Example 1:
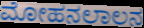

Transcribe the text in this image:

ಮೋಹನಲಾಲನ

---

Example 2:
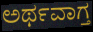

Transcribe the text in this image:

ಅರ್ಥವಾಗ್ತ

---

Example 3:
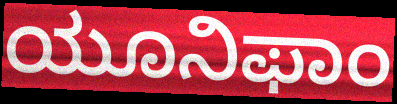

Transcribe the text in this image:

ಯೂನಿಫಾಂ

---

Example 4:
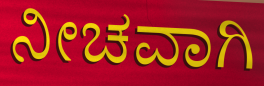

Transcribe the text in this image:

ನೀಚವಾಗಿ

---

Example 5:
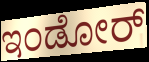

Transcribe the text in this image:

ಇಂಡೋರ್